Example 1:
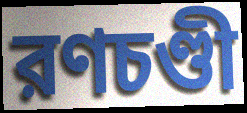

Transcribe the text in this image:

রণচণ্ডী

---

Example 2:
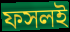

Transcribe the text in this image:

ফসলই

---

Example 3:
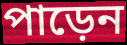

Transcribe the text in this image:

পাড়েন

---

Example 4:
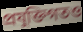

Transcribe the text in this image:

প্রযুক্তিগতও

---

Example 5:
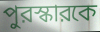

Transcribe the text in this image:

পুরস্কারকে